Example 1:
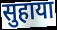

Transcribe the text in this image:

सुहाया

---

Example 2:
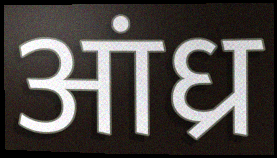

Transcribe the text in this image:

आंध्र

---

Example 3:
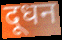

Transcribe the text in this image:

दूधन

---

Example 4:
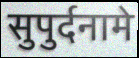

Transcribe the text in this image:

सुपुर्दनामे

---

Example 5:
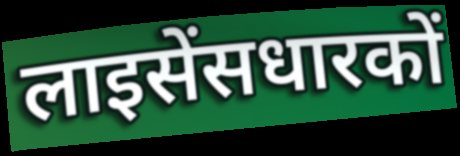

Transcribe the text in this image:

लाइसेंसधारकों